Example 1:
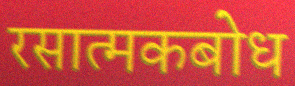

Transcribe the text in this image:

रसात्मकबोध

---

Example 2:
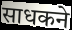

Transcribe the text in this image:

साधकने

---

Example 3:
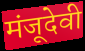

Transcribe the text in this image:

मंजूदेवी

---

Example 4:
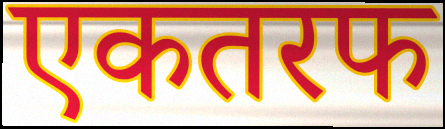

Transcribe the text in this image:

एकतरफ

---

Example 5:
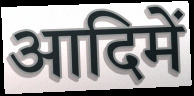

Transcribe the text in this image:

आदिमें